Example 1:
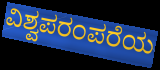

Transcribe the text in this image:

ವಿಶ್ವಪರಂಪರೆಯ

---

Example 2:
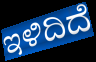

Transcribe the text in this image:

ಇಳಿದಿದೆ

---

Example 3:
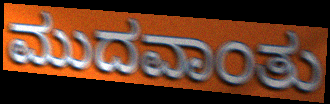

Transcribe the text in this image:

ಮುದವಾಂತು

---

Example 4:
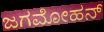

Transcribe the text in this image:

ಜಗಮೋಹನ್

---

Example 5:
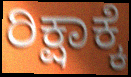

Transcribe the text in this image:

ರಿಕ್ಷಾಕ್ಕೆ